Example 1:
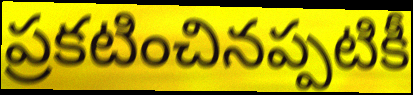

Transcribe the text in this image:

ప్రకటించినప్పటికీ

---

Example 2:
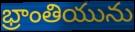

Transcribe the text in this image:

భ్రాంతియును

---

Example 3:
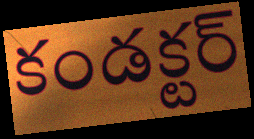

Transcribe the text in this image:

కండక్టర్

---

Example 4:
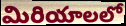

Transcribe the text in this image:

మిరియాలలో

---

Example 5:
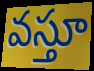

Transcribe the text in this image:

వస్తూ